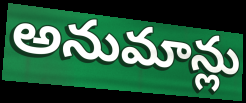
అనుమాన్లు